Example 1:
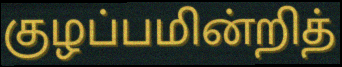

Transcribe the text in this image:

குழப்பமின்றித்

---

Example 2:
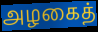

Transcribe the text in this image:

அழகைத்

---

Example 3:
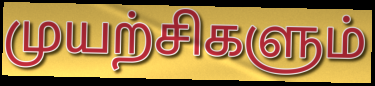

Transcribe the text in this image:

முயற்சிகளும்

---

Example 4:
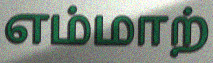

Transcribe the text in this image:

எம்மாற்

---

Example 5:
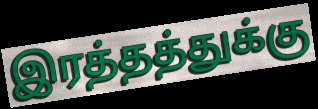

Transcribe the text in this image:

இரத்தத்துக்கு